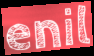
enil